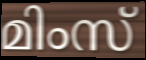
മിംസ്